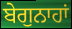
ਬੇਗੁਨਾਹਾਂ